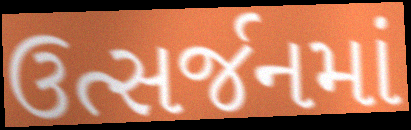
ઉત્સર્જનમાં